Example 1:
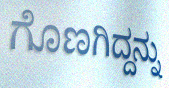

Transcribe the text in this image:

ಗೊಣಗಿದ್ದನ್ನು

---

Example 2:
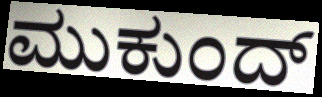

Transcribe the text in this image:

ಮುಕುಂದ್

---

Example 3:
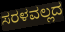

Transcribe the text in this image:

ಸರಳವಲ್ಲದ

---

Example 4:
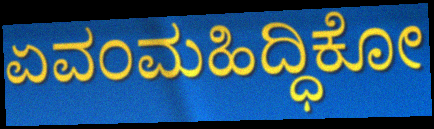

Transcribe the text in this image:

ಏವಂಮಹಿದ್ಧಿಕೋ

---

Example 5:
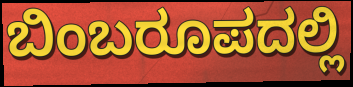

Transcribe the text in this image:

ಬಿಂಬರೂಪದಲ್ಲಿ